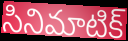
సినిమాటిక్